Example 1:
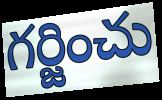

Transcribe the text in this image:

గర్జించు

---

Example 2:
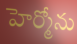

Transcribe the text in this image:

హెర్మోను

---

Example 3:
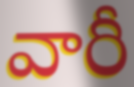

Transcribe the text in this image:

వారీ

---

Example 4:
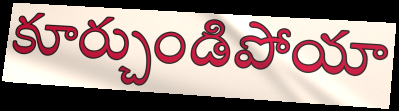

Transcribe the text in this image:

కూర్చుండిపోయా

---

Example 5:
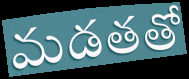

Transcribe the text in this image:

మడతతో